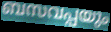
ബസവപ്പയും